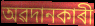
অৱদানকাৰী